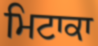
ਮਿਟਾਕਾ